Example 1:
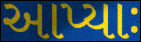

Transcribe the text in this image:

આપ્યાઃ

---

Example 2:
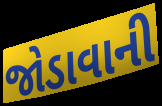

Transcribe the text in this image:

જોડાવાની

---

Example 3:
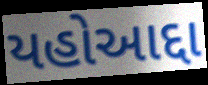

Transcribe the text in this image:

યહોઆદ્દા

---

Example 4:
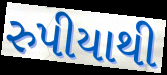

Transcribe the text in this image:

રુપીયાથી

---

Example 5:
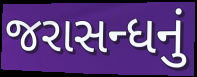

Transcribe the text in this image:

જરાસન્ધનું